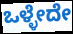
ಒಳ್ಳೇದೇ